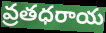
వ్రతధరాయ